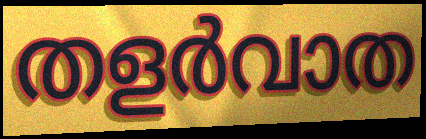
തളർവാത